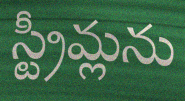
స్ట్రీమ్లను